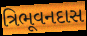
ત્રિભૂવનદાસ